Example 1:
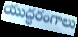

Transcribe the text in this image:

యుద్ధరంగాలు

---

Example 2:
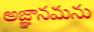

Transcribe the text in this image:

అజ్ఞానమను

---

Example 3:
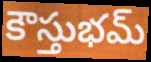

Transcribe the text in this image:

కౌస్తుభమ్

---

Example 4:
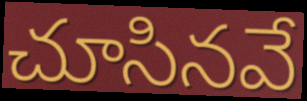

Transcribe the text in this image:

చూసినవే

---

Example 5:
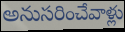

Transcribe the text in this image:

అనుసరించేవాళ్లు